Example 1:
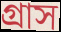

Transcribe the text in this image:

গ্রাস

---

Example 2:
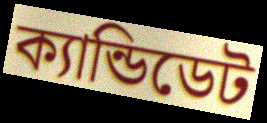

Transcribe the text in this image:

ক্যান্ডিডেট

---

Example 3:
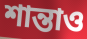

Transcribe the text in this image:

শান্তাও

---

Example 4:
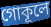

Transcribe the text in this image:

গোকূলে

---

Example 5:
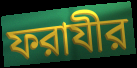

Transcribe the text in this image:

ফরাযীর